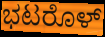
ಭಟರೊಳ್